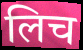
लिच